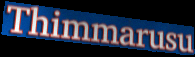
Thimmarusu